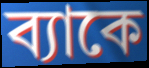
ব্যাকে